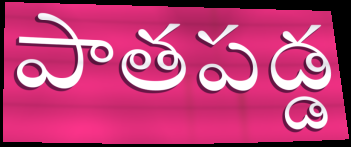
పాతపడ్డ